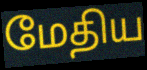
மேதிய